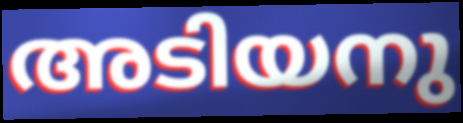
അടിയനു